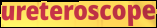
ureteroscope